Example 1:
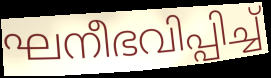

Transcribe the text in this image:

ഘനീഭവിപ്പിച്ച്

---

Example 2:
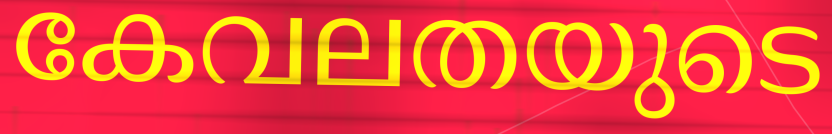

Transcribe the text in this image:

കേവലതയുടെ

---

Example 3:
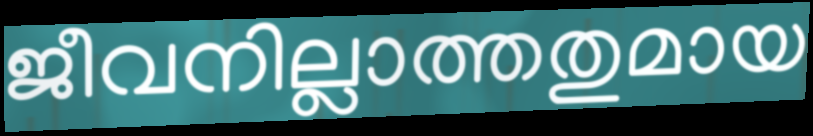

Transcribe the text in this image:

ജീവനില്ലാത്തതുമായ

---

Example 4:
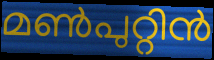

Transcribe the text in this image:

മൺപുറ്റിൻ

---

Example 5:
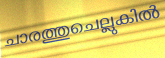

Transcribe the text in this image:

ചാരത്തുചെല്ലുകിൽ